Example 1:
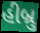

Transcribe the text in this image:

હીબ્રુ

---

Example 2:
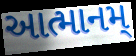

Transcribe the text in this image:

આત્માનમ્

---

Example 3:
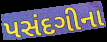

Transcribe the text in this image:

પસંદગીના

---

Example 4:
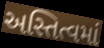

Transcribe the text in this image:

અસ્તિત્વમાં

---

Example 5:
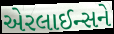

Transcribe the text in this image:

એરલાઈન્સને